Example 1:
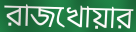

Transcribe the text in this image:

রাজখোয়ার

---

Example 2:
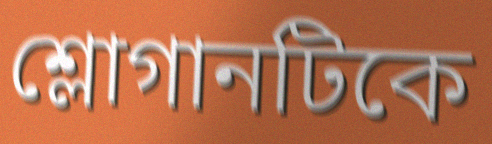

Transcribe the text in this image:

শ্লোগানটিকে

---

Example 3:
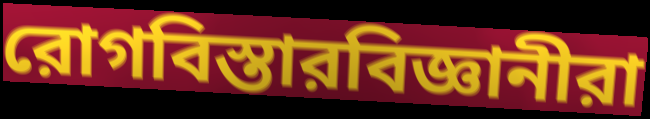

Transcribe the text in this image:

রোগবিস্তারবিজ্ঞানীরা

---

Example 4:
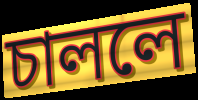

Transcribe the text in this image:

চাললে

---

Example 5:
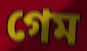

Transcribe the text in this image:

গেম